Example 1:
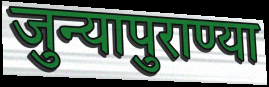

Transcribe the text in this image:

जुन्यापुराण्या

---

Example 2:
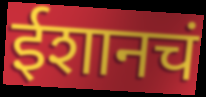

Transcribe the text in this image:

ईशानचं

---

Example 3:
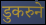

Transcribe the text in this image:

डुकरुने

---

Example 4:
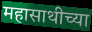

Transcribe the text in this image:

महासाथीच्या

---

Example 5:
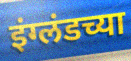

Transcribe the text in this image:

इंग्लंडच्या